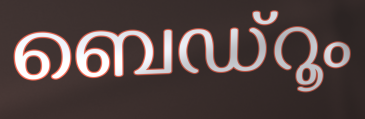
ബെഡ്റൂം